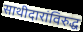
साथीदारांविरुद्ध